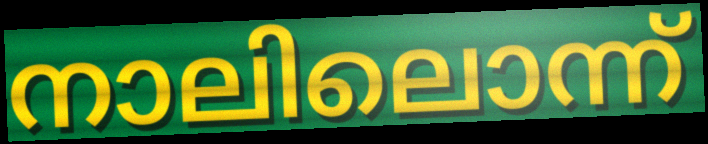
നാലിലൊന്ന്